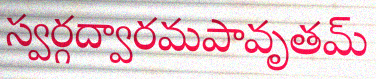
స్వర్గద్వారమపావృతమ్